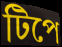
টিপে